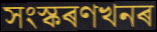
সংস্কৰণখনৰ